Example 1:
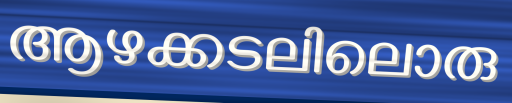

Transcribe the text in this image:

ആഴക്കടലിലൊരു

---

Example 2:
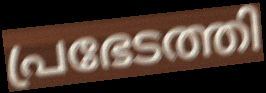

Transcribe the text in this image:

പ്രഭേടത്തി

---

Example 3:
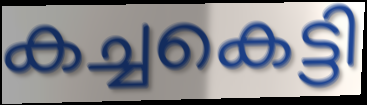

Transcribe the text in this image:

കച്ചകെട്ടി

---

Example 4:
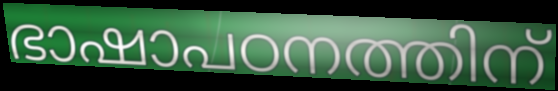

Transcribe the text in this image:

ഭാഷാപഠനത്തിന്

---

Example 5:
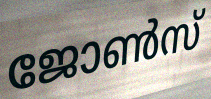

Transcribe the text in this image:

ജോൺസ്